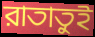
রাতাতুই